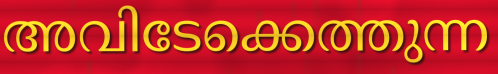
അവിടേക്കെത്തുന്ന